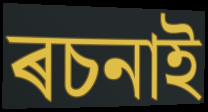
ৰচনাই